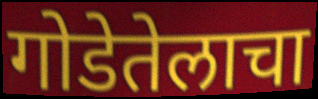
गोडेतेलाचा